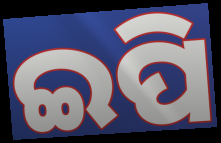
ଇପି